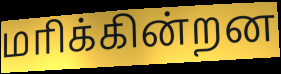
மரிக்கின்றன